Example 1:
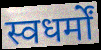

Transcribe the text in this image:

स्वधर्मों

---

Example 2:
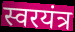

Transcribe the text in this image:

स्वरयंत्र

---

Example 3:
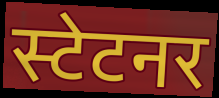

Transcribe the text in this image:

स्टेटनर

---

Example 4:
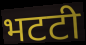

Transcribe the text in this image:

भटटी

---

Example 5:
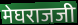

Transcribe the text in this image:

मेघराजजी